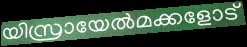
യിസ്രായേൽമക്കളോട്